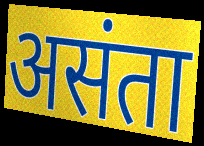
असंता